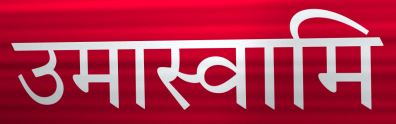
उमास्वामि